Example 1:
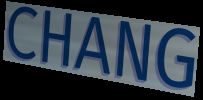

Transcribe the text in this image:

CHANG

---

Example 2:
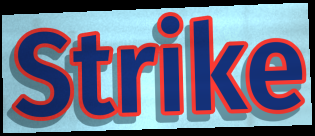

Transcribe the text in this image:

Strike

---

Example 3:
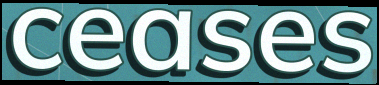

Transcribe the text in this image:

ceases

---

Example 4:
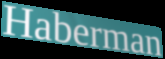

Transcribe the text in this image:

Haberman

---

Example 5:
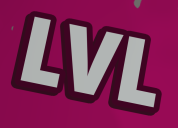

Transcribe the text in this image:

LVL